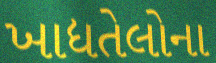
ખાદ્યતેલોના